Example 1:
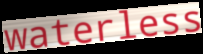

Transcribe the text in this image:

waterless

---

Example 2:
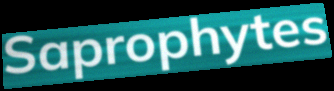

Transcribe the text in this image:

Saprophytes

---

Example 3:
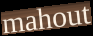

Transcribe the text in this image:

mahout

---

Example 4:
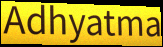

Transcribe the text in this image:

Adhyatma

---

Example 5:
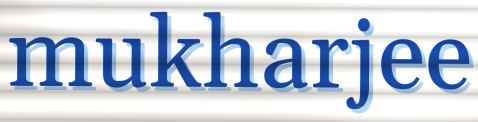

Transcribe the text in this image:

mukharjee